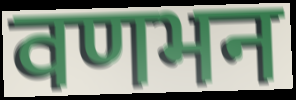
वणभन